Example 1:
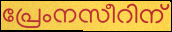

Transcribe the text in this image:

പ്രേംനസീറിന്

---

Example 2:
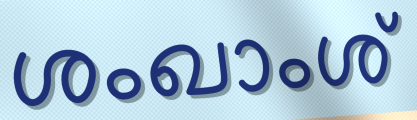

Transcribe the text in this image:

ശംഖാംശ്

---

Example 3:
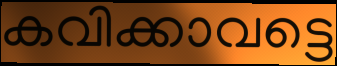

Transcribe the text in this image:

കവിക്കാവട്ടെ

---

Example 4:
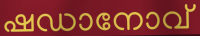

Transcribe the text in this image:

ഷഡാനോവ്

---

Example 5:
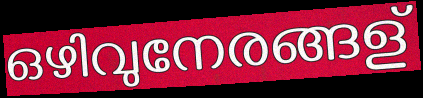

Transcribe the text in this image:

ഒഴിവുനേരങ്ങള്